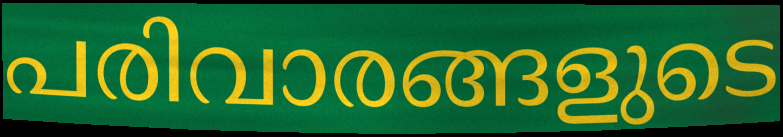
പരിവാരങ്ങളുടെ